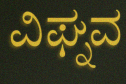
ವಿಘ್ನವ